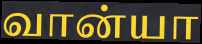
வான்யா